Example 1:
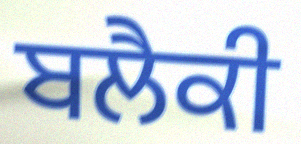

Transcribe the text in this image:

ਬਲੈਕੀ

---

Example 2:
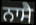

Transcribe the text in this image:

ਨਾਸੈ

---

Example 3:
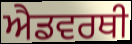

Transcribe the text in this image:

ਐਡਵਰਥੀ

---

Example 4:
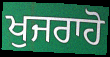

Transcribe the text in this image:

ਖੁਜਰਾਹੋ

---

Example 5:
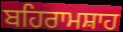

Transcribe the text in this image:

ਬਹਿਰਾਮਸ਼ਾਹ